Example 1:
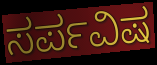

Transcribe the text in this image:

ಸರ್ಪವಿಷ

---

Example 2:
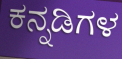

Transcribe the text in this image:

ಕನ್ನಡಿಗಳ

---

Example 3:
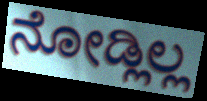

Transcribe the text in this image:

ನೋಡ್ಲಿಲ್ಲ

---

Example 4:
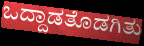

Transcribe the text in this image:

ಒದ್ದಾಡತೊಡಗಿತು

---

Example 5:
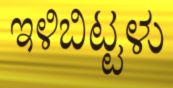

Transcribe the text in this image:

ಇಳಿಬಿಟ್ಟಳು